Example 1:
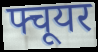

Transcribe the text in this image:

फ्चूयर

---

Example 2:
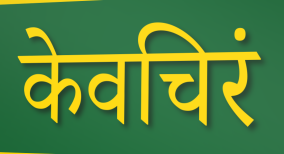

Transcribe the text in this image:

केवचिरं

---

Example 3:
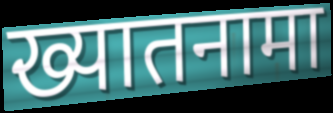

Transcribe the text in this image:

ख्यातनामा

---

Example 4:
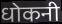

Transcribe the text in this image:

धोकनी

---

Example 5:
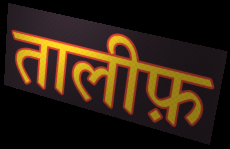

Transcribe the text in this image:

तालीफ़